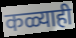
कळ्याही